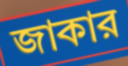
জাকার